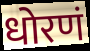
धोरणं